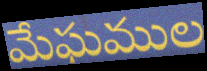
మేఘముల